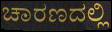
ಚಾರಣದಲ್ಲಿ